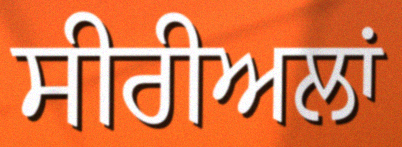
ਸੀਰੀਅਲਾਂ